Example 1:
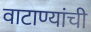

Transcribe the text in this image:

वाटाण्यांची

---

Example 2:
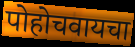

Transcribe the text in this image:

पोहोचवायचा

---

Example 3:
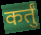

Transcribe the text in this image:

कर्तुं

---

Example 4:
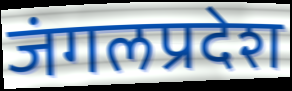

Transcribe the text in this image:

जंगलप्रदेश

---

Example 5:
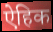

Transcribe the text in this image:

ऐहिक